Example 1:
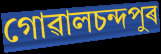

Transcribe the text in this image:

গোৱালচন্দপুৰ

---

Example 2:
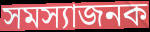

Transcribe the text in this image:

সমস্যাজনক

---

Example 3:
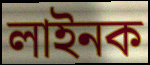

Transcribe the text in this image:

লাইনক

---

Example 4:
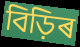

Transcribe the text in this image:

বিড়িৰ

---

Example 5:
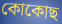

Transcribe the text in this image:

কোকোছ